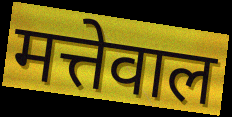
मत्तेवाल